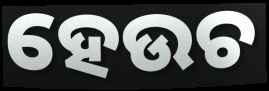
ହେଉଚ